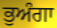
ਭੁਅੰਗਾ